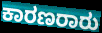
ಕಾರಣರಾರು